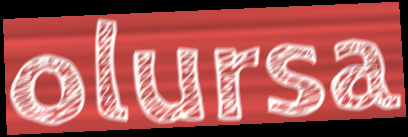
olursa